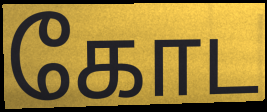
கோட